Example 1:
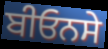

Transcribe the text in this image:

ਬੀਓਨਸੇ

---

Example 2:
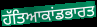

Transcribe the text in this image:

ਹੱਤਿਆਕਾਂਡਭਾਰਤ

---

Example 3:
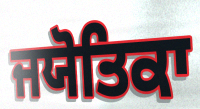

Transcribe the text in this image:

ਜਯੋਤਿਕਾ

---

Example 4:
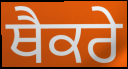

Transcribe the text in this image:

ਥੈਕਰੇ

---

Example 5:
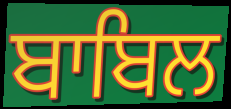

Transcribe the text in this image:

ਬਾਬਿਲ